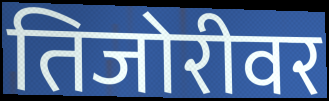
तिजोरीवर